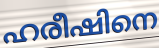
ഹരീഷിനെ